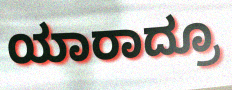
ಯಾರಾದ್ರೂ